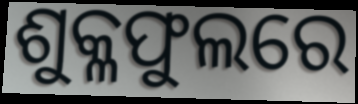
ଶୁକ୍ଳଫୁଲରେ